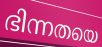
ഭിന്നതയെ